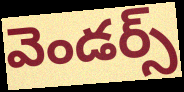
వెండర్స్